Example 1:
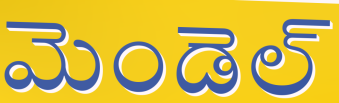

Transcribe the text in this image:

మెండెల్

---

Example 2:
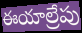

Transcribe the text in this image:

ఈయాల్రేపు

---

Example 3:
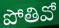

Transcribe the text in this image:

పోతివో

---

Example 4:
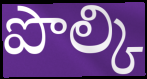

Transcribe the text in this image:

పొల్కి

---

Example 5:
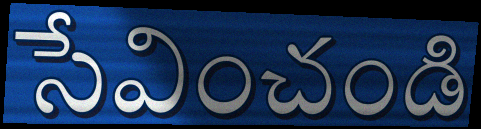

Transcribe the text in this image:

సేవించండి